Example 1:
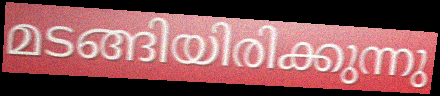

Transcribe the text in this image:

മടങ്ങിയിരിക്കുന്നു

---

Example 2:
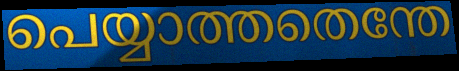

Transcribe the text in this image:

പെയ്യാത്തതെന്തേ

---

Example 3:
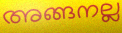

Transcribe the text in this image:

അങ്ങനല്ല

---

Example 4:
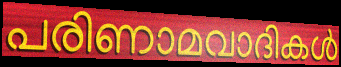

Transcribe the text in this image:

പരിണാമവാദികൾ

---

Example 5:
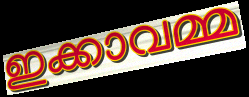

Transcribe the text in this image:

ഇക്കാവമ്മ